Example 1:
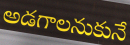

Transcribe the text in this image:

అడగాలనుకునే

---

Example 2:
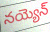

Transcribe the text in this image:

నయ్యెన్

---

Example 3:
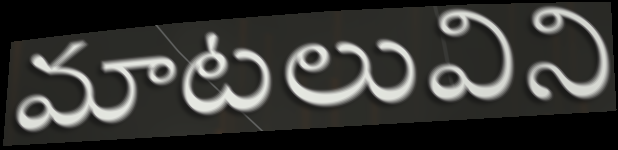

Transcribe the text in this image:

మాటలువిని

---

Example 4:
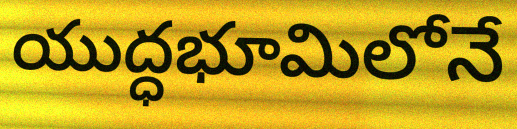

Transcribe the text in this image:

యుద్ధభూమిలోనే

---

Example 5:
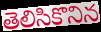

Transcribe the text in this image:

తెలిసికొనిన